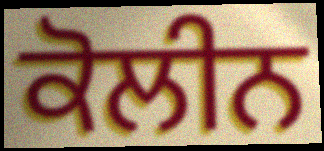
ਕੋਲੀਨ